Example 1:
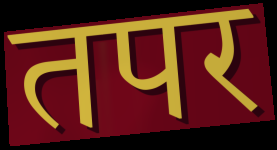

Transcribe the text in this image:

तपर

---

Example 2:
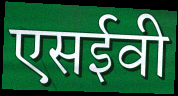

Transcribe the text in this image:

एसईवी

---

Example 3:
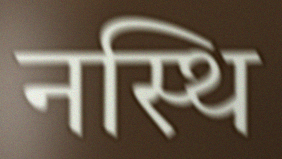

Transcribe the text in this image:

नस्थि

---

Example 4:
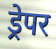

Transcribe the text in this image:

ड्रेपर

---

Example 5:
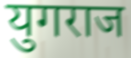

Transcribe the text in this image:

युगराज